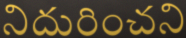
నిదురించని